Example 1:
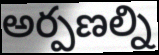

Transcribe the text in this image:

అర్పణల్ని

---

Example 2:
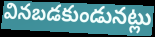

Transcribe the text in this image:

వినబడకుండునట్లు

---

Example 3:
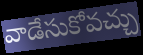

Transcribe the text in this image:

వాడేసుకోవచ్చు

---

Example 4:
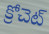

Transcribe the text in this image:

క్రోచెట్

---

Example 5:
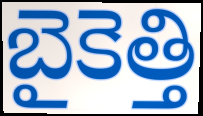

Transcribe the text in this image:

బైకెత్తి